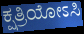
ಕ್ಷತ್ರಿಯೋಽಸಿ